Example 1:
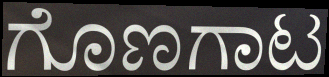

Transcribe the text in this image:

ಗೊಣಗಾಟ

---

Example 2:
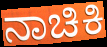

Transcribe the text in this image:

ನಾಚಿಕಿ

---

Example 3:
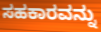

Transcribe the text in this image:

ಸಹಕಾರವನ್ನು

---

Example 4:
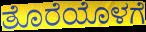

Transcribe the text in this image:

ತೊರೆಯೊಳಗೆ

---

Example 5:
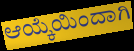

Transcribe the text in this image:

ಆಯ್ಕೆಯಿಂದಾಗಿ